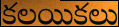
కలయికలు